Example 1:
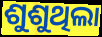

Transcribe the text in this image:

ଶୁଶୁଥିଲା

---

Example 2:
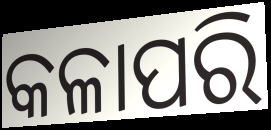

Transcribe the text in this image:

କଳାପରି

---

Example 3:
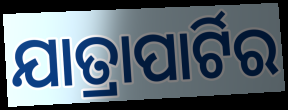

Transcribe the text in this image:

ଯାତ୍ରାପାର୍ଟିର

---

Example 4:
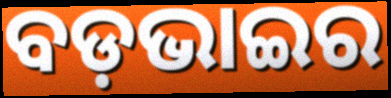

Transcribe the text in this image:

ବଡ଼ଭାଇର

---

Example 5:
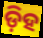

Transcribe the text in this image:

ଡ଼ିହ